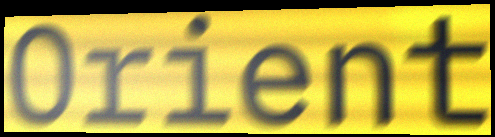
Orient